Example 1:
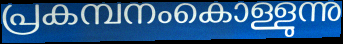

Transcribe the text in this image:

പ്രകമ്പനംകൊള്ളുന്നു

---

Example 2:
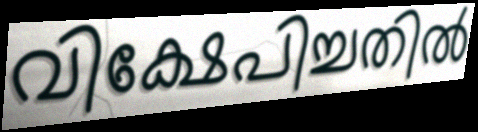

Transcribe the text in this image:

വിക്ഷേപിച്ചതിൽ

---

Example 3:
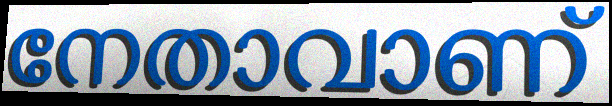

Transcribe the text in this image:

നേതാവാണ്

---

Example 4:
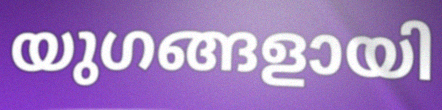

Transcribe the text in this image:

യുഗങ്ങളായി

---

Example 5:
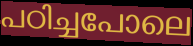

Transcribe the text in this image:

പഠിച്ചപോലെ